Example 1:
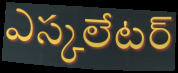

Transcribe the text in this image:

ఎస్కలేటర్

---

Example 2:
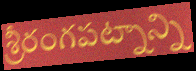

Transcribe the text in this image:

శ్రీరంగపట్నాన్ని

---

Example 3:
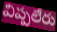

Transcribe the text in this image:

విప్పలేరు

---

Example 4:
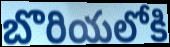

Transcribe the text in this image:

బొరియలోకి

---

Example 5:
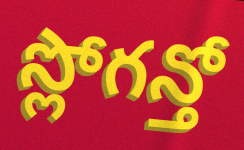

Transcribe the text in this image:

స్లోగన్తో